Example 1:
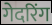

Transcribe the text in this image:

गेदरिंग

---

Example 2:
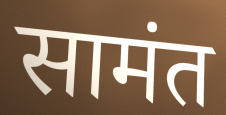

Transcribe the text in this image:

सामंत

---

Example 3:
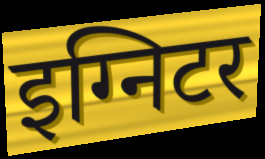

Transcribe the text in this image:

इग्निटर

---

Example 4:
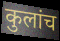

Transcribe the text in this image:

कुलांच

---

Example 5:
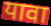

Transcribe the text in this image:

यावा